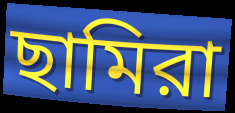
ছামিরা